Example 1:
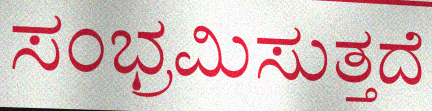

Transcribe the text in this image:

ಸಂಭ್ರಮಿಸುತ್ತದೆ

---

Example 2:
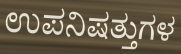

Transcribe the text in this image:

ಉಪನಿಷತ್ತುಗಳ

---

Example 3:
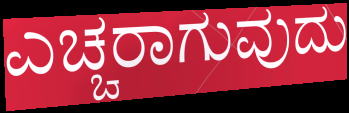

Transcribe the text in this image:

ಎಚ್ಚರಾಗುವುದು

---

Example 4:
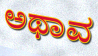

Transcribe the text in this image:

ಅಥಾವ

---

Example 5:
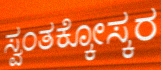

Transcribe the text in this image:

ಸ್ವಂತಕ್ಕೋಸ್ಕರ